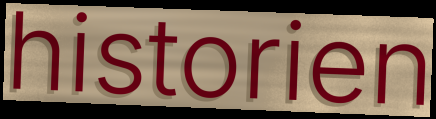
historien